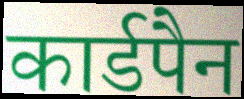
कार्डपैन